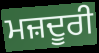
ਮਜ਼ਦੂਰੀ